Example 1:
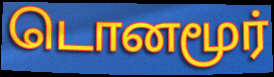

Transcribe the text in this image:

டொனமூர்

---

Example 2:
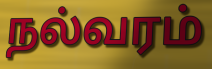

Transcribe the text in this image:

நல்வரம்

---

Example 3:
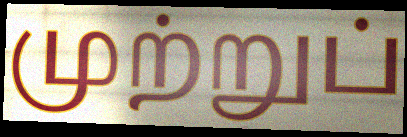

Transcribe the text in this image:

முற்றுப்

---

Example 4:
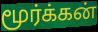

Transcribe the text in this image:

மூர்க்கன்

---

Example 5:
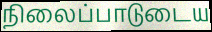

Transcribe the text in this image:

நிலைப்பாடுடைய